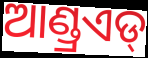
ଆଣ୍ଡ୍ରଏଡ୍